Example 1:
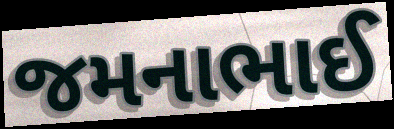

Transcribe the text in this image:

જમનાભાઈ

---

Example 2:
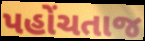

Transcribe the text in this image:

પહોંચતાજ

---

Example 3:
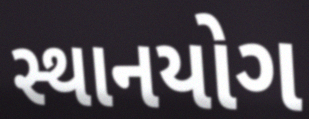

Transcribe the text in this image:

સ્થાનયોગ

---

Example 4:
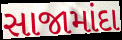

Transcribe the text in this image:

સાજામાંદા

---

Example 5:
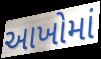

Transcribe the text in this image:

આખોમાં